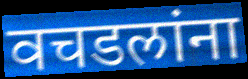
वचडलांना